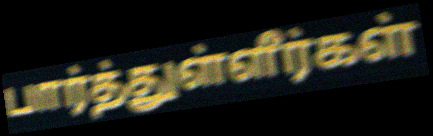
பார்த்துள்ளீர்கள்